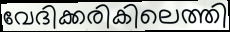
വേദിക്കരികിലെത്തി